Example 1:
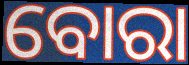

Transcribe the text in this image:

ବୋରା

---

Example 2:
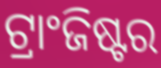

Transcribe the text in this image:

ଟ୍ରାଂଜିଷ୍ଟର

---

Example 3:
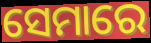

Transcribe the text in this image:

ସେମାରେ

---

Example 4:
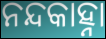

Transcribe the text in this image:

ନନ୍ଦକାହ୍ନା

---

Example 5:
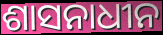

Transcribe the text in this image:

ଶାସନାଧୀନ